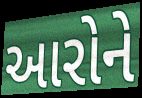
આરોને